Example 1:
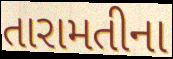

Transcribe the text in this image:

તારામતીના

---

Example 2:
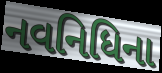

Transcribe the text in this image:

નવનિધિના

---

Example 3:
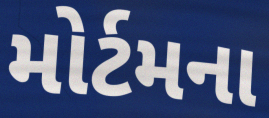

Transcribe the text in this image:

મોર્ટમના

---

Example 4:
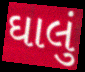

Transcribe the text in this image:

ઘાલું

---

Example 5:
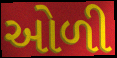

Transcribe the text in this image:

ઓળી